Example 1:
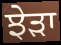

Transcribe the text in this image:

ਝੇੜਾ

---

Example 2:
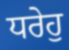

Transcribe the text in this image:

ਧਰੇਹੁ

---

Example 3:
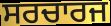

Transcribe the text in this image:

ਸਰਚਾਰਜ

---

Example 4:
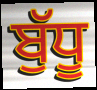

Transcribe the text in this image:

ਬੁੱਧੂ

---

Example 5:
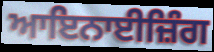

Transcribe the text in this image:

ਆਇਨਾਈਜ਼ਿੰਗ